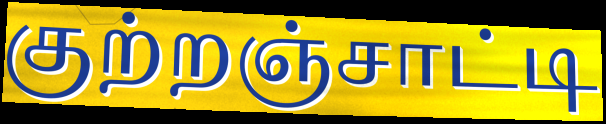
குற்றஞ்சாட்டி